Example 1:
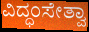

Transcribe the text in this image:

ವಿದ್ಧಂಸೇತ್ವಾ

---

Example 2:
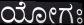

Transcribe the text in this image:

ಯೋಗಃ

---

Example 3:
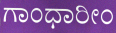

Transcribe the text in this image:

ಗಾಂಧಾರೀಂ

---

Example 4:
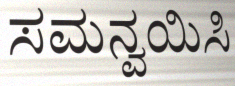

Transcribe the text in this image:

ಸಮನ್ವಯಿಸಿ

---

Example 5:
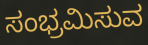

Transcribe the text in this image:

ಸಂಭ್ರಮಿಸುವ